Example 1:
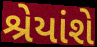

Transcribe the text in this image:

શ્રેયાંશે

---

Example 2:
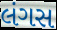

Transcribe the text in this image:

લંગસ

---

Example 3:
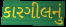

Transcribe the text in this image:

કારગીલનું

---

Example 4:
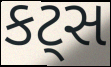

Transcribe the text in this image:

કટ્સ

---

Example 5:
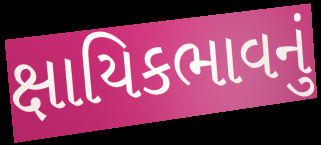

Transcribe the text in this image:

ક્ષાયિકભાવનું